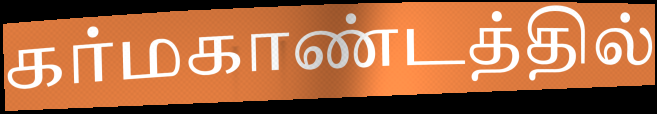
கர்மகாண்டத்தில்